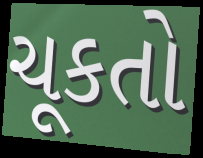
ચૂકતો